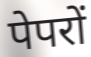
पेपरों